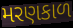
મરણકાળ